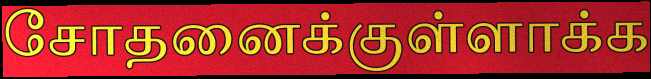
சோதனைக்குள்ளாக்க